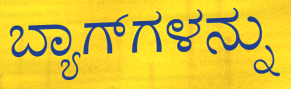
ಬ್ಯಾಗ್‍ಗಳನ್ನು